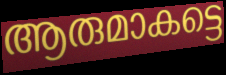
ആരുമാകട്ടെ